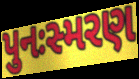
પુનઃસ્મરણ